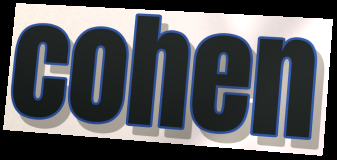
cohen